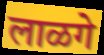
लाळगे